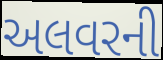
અલવરની